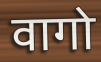
वागो